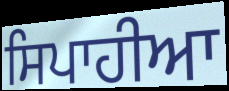
ਸਿਪਾਹੀਆ